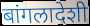
बांगलादेशी